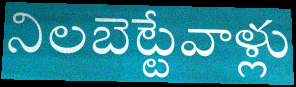
నిలబెట్టేవాళ్లు